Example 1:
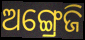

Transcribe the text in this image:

ଅଙ୍ଗ୍ରେଜି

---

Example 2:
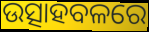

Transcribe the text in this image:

ଉତ୍ସାହବଳରେ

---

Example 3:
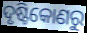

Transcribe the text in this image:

ଦୃଷ୍ଟିକୋଣରୁ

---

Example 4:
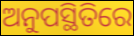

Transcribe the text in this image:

ଅନୁପସ୍ଥିତିରେ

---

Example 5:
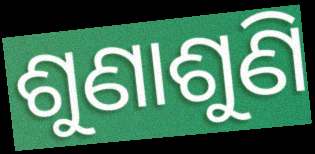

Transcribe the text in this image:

ଶୁଣାଶୁଣି